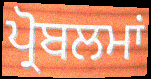
ਪ੍ਰੋਬਲਮਾਂ